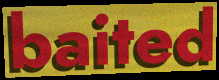
baited